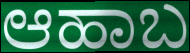
ಆಹಾಬ